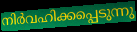
നിർവഹിക്കപ്പെടുന്നു